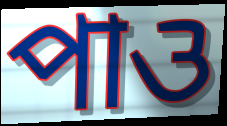
পাও